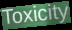
Toxicity